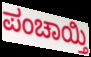
ಪಂಚಾಯ್ತಿ